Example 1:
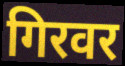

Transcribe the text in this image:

गिरवर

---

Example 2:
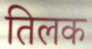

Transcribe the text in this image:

तिलक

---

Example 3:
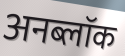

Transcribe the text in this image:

अनब्लॉक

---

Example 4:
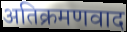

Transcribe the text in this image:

अतिक्रमणवाद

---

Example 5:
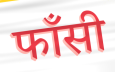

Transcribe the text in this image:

फाँसी